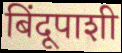
बिंदूपाशी